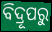
ବିଦ୍ରୂପରୁ